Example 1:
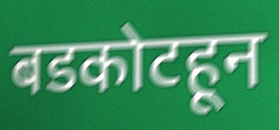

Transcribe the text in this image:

बडकोटहून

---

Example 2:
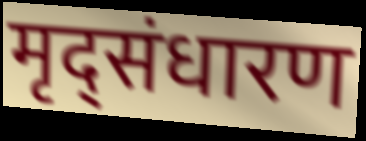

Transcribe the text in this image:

मृद्संधारण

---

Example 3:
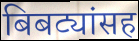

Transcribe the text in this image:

बिबट्यांसह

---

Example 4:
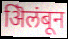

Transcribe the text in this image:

ऄिलंबून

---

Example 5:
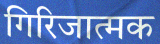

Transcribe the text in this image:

गिरिजात्मक